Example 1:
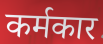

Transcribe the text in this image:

कर्मकार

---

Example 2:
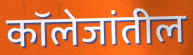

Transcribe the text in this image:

कॉलेजांतील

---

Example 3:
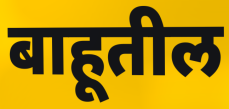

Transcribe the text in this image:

बाहूतील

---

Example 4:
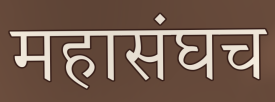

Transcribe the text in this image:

महासंघच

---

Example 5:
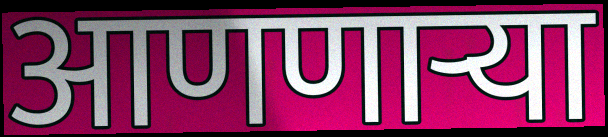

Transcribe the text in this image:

आणणाऱ्या